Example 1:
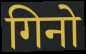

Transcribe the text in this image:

गिनो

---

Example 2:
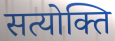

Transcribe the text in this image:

सत्योक्ति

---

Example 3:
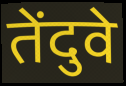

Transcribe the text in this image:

तेंदुवे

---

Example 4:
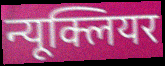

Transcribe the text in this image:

न्यूक्लियर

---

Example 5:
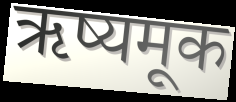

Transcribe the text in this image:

ऋष्यमूक